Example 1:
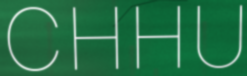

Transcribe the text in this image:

CHHU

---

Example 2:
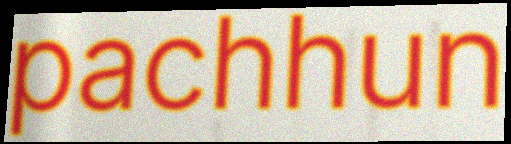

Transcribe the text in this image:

pachhun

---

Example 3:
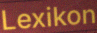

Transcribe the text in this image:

Lexikon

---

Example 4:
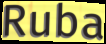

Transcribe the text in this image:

Ruba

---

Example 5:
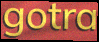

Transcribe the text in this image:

gotra